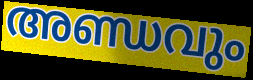
അണ്ഡവും